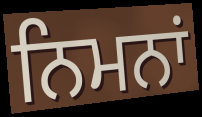
ਨਿਮਨਾਂ